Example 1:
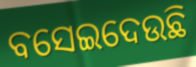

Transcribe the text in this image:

ବସେଇଦେଉଛି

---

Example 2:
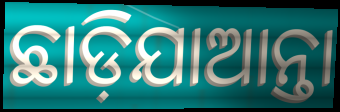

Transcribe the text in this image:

ଛାଡ଼ିଯାଆନ୍ତା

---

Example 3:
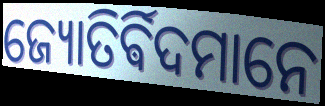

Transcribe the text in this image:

ଜ୍ୟୋତିର୍ଵିଦମାନେ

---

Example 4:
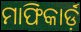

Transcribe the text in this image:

ମାଫିକାର୍ଡ଼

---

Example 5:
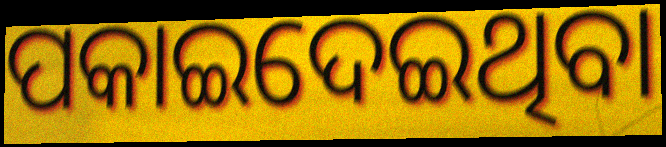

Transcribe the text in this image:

ପକାଇଦେଇଥିବା